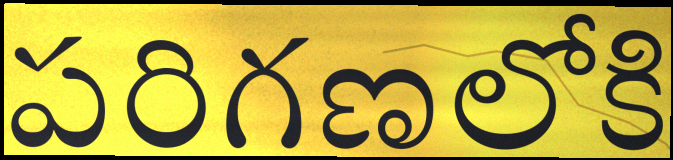
పరిగణలోకి